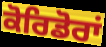
ਕੋਰਿਡੋਰਾਂ